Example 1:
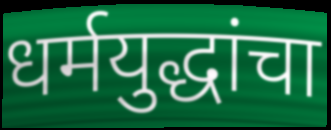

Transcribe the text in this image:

धर्मयुद्धांचा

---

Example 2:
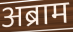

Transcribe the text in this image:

अब्राम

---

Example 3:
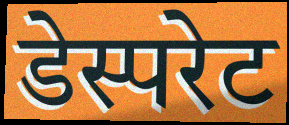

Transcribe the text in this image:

डेस्परेट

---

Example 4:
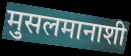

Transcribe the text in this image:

मुसलमानाशी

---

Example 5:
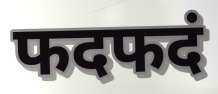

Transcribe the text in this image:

फदफदं